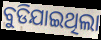
ବୁଡିଯାଇଥିଲା